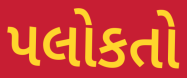
પલોકતો